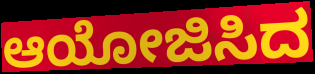
ಆಯೋಜಿಸಿದ